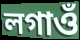
লগাওঁ